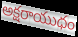
అక్షరాయుధం